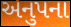
અનુપના